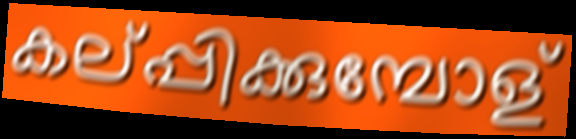
കല്പ്പിക്കുമ്പോള്